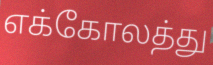
எக்கோலத்து